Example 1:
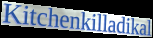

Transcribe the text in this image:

Kitchenkilladikal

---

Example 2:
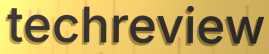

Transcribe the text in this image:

techreview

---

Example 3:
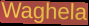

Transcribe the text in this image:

Waghela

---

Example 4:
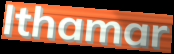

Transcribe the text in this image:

Ithamar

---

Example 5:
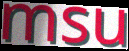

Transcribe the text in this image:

msu